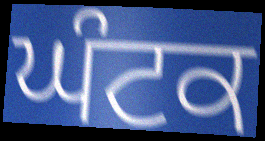
ਘੰਟਕ